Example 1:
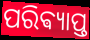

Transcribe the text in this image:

ପରିଵ୍ୟାପ୍ତ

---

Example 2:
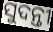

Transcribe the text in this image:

ସୁଦନ୍ତୀ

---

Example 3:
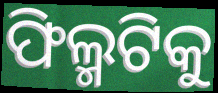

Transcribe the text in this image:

ଫିଲ୍ମଟିକୁ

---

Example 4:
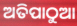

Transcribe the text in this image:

ଅତିପାଠୁଆ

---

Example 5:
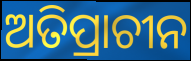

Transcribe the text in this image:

ଅତିପ୍ରାଚୀନ